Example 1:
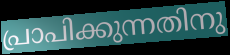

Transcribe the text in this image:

പ്രാപിക്കുന്നതിനു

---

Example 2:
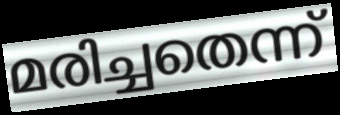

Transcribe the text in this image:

മരിച്ചതെന്ന്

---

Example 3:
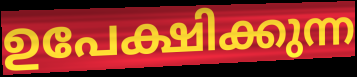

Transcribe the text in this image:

ഉപേക്ഷിക്കുന്ന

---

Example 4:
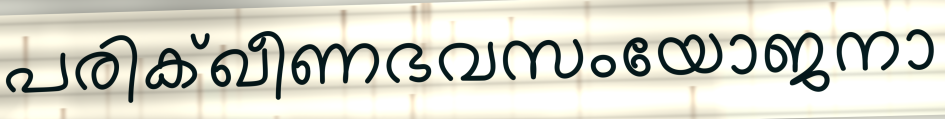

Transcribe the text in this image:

പരിക്ഖീണഭവസംയോജനാ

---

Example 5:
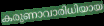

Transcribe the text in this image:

കരുണാവാരിധിയായ